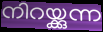
നിറയ്ക്കുന്ന